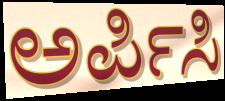
ಅರ್ಪಿಸಿ